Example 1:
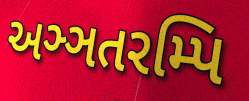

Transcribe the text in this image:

અઞ્ઞતરમ્પિ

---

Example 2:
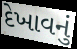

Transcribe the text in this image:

દેખાવનું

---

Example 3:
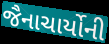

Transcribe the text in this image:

જૈનાચાર્યોની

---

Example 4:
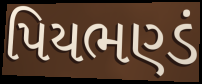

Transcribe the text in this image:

પિયભણ્ડં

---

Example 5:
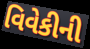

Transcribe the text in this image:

વિવેકીની